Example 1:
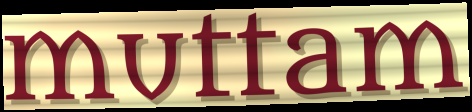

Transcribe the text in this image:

muttam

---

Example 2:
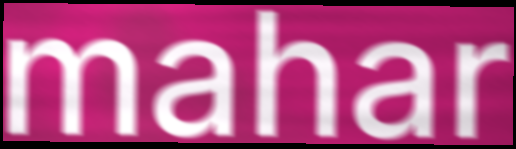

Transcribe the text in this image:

mahar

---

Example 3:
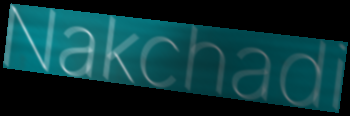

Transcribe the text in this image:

Nakchadi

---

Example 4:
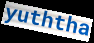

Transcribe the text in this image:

yuththa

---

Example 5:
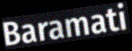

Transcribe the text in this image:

Baramati